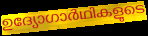
ഉദ്യോഗാർഥികളുടെ